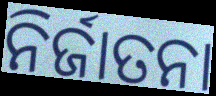
ନିର୍ଜାତନା